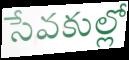
సేవకుల్లో